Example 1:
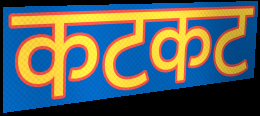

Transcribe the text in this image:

कटकट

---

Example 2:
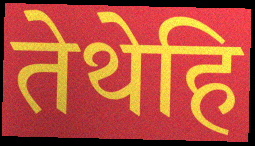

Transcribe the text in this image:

तेथेहि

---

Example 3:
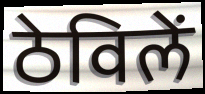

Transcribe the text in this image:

ठेविलें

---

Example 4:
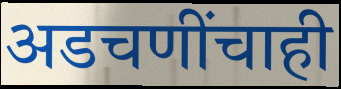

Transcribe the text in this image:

अडचणींचाही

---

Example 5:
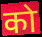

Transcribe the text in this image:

को